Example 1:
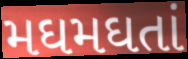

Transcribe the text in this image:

મઘમઘતાં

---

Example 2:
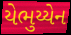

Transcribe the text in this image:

યેભુય્યેન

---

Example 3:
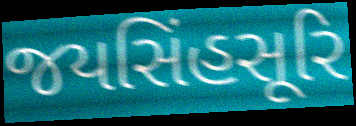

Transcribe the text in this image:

જયસિંહસૂરિ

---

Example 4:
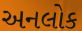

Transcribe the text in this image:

અનલોક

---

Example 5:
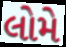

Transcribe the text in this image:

લોમે